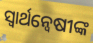
ସ୍ୱାର୍ଥନ୍ୱେଷୀଙ୍କ